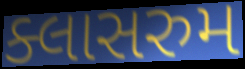
ક્લાસરુમ